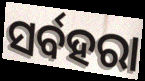
ସର୍ବହରା